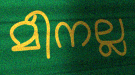
മീനല്ല